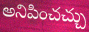
అనిపించచ్చు